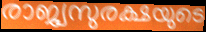
രാജ്യസുരക്ഷയുടെ